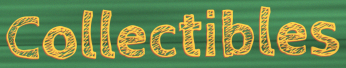
Collectibles